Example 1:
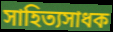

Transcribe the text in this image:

সাহিত্যসাধক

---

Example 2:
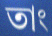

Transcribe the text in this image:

তাং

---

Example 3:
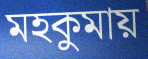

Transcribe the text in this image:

মহকুমায়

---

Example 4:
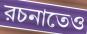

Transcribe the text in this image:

রচনাতেও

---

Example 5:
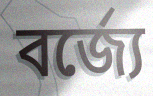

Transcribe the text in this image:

বর্জ্যে